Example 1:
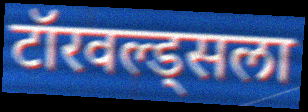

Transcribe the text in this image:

टॉरवल्ड्सला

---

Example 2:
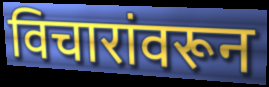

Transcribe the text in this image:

विचारांवरून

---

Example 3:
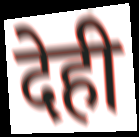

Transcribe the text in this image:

देही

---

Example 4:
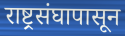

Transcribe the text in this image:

राष्ट्रसंघापासून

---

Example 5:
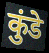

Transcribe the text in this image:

कुंडे